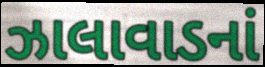
ઝાલાવાડનાં